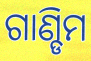
ଗାଣ୍ଡିମ